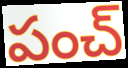
పంచ్